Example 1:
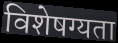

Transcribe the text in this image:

विशेषग्यता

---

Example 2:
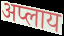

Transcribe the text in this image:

अप्लाय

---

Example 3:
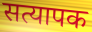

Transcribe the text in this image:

सत्यापक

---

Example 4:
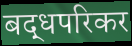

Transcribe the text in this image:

बद्धपरिकर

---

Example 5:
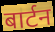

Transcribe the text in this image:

बार्टन